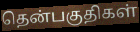
தென்பகுதிகள்